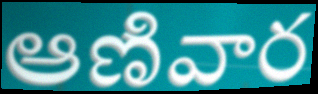
ఆణివార